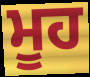
ਮੂਹ